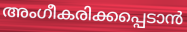
അംഗീകരിക്കപ്പെടാൻ